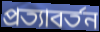
প্রত্যাবর্তন